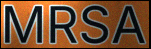
MRSA